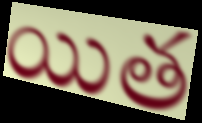
యిత